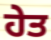
ਹੇਤ